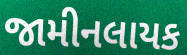
જામીનલાયક